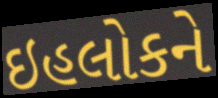
ઇહલોકને